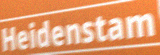
Heidenstam